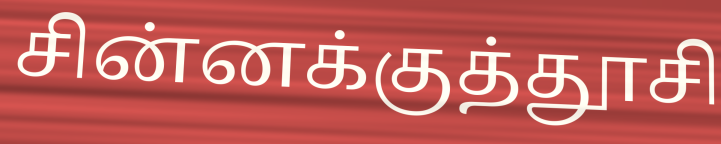
சின்னக்குத்தூசி